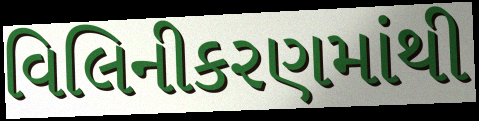
વિલિનીકરણમાંથી